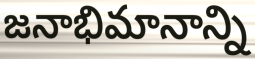
జనాభిమానాన్ని